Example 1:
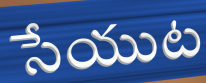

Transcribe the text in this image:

సేయుట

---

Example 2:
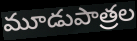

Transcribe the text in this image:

మూడుపాత్రల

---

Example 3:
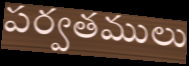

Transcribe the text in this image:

పర్వతములు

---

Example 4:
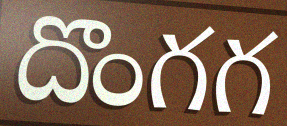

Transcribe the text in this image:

దొంగగ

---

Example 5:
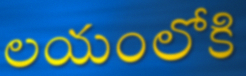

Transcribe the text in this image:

లయంలోకి